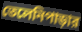
তেলেনিপাড়ার